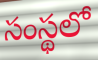
సంస్థలో